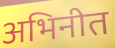
अभिनीत